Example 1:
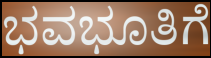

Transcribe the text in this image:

ಭವಭೂತಿಗೆ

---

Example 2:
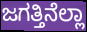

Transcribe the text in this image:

ಜಗತ್ತಿನೆಲ್ಲಾ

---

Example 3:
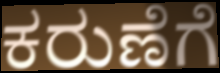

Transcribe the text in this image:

ಕರುಣೆಗೆ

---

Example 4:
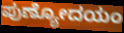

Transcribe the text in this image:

ಪುಣ್ಯೋದಯಂ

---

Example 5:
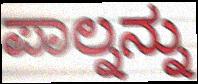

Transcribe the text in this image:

ಪಾಲ್ನನ್ನು